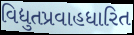
વિદ્યુતપ્રવાહધારિત